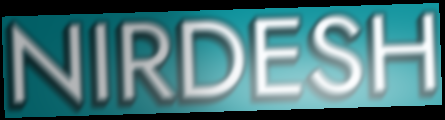
NIRDESH